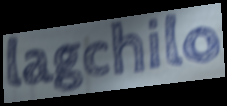
lagchilo